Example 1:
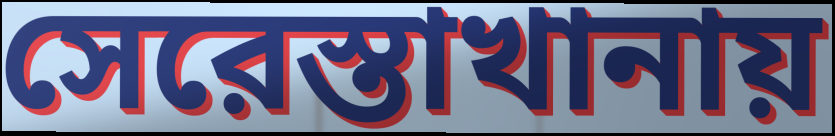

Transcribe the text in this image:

সেরেস্তাখানায়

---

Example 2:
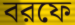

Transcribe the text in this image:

বরফে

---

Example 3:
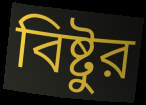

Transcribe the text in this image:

বিষ্টুর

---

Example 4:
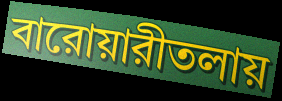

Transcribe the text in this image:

বারোয়ারীতলায়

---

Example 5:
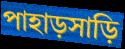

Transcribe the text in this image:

পাহাড়সাড়ি